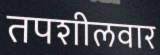
तपशीलवार